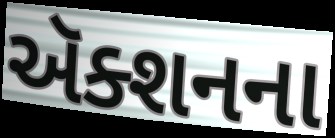
ઍક્શનના